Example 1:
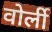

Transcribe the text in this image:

वोर्ली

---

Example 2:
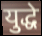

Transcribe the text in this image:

युद्धे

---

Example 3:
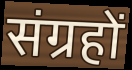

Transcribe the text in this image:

संग्रहों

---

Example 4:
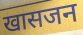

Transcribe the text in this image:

खासजन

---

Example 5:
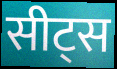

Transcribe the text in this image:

सीट्स